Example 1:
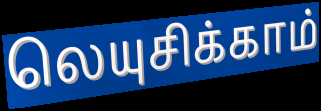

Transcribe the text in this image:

லெயுசிக்காம்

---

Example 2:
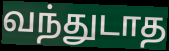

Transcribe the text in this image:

வந்துடாத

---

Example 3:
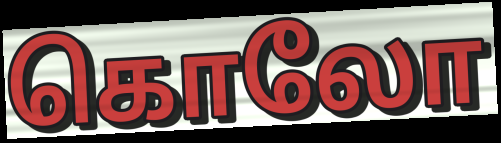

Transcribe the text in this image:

கொலோ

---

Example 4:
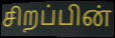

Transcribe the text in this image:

சிறப்பின்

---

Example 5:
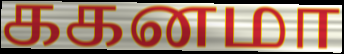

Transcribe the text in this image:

ககனமா